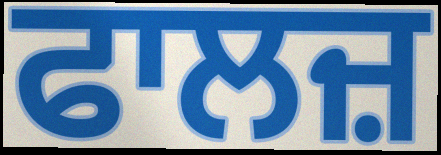
ਫਾਲਜ਼